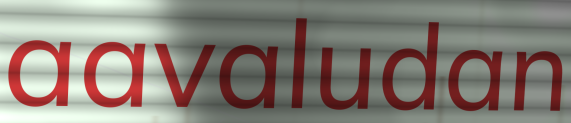
aavaludan